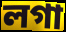
লগা